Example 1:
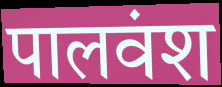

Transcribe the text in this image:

पालवंश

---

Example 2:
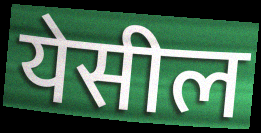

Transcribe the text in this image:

येसील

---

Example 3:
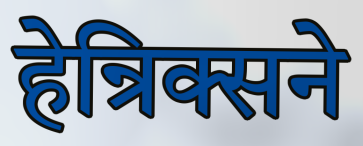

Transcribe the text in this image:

हेन्रिक्सने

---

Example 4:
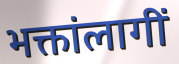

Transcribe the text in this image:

भक्तांलागीं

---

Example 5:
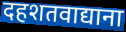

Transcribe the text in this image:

दहशतवाद्याना